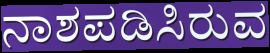
ನಾಶಪಡಿಸಿರುವ